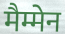
मैम्मेन